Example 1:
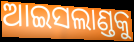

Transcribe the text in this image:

ଆଇସଲାଣ୍ଡକୁ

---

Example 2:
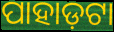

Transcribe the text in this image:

ପାହାଡ଼ଟା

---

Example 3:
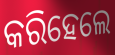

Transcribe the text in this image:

କରିହେଲେ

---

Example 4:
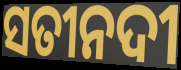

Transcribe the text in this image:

ସତୀନଦୀ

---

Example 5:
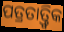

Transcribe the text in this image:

ପତ୍ରତାତ୍ତ୍ୱିକ